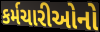
કર્મચારીઓનો